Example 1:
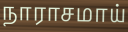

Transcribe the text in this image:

நாராசமாய்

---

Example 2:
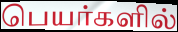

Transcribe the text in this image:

பெயர்களில்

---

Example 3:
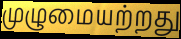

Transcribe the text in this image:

முழுமையற்றது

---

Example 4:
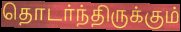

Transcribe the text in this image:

தொடர்ந்திருக்கும்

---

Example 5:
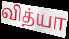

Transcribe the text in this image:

வித்யா